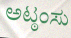
ಅಟ್ಠಂಸು